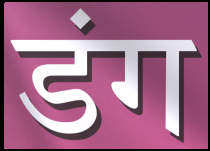
डंग